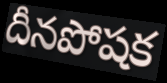
దీనపోషక